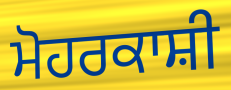
ਮੋਹਰਕਾਸ਼ੀ